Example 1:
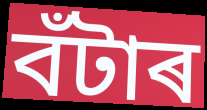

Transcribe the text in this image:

বঁটাৰ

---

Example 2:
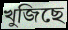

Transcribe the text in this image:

খুজিছে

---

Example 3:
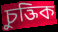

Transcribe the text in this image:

চুক্তিক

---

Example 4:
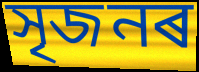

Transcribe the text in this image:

সৃজনৰ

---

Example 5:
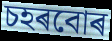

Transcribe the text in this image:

চহৰবোৰ